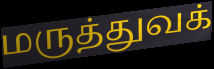
மருத்துவக்